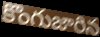
కొంగుజారిన